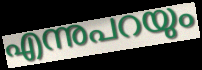
എന്നുപറയും